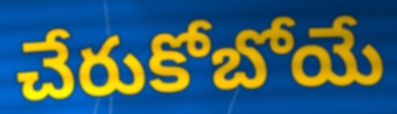
చేరుకోబోయే